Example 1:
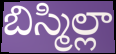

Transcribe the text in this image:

బిస్మిల్లా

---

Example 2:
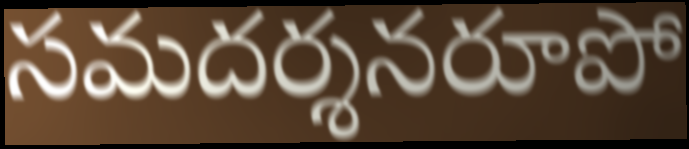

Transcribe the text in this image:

సమదర్శనరూపో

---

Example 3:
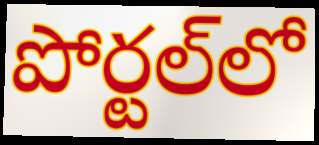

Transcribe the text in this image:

పోర్టల్‌లో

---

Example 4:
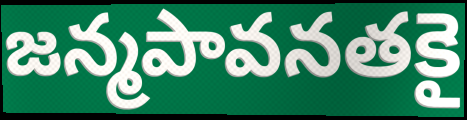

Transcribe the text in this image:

జన్మపావనతకై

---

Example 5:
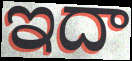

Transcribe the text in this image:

ఇదా